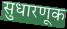
सुधारणूक